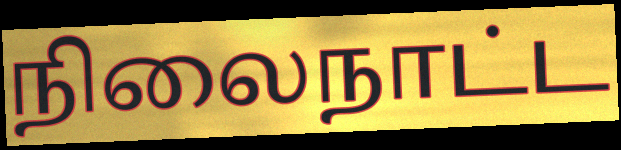
நிலைநாட்ட